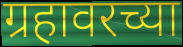
ग्रहावरच्या